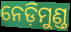
ନେଡ଼ିମୁଣ୍ଡ